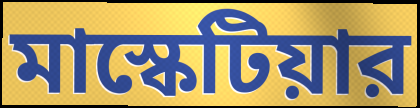
মাস্কেটিয়ার